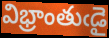
విభ్రాంతుఁడై